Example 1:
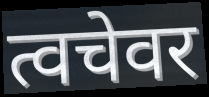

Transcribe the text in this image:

त्वचेवर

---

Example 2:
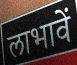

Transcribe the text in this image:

लाभावें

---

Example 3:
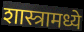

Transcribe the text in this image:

शास्त्रामध्ये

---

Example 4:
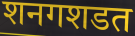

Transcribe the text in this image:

शनगशडत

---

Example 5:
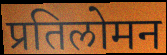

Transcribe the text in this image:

प्रतिलोमन